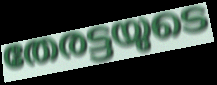
തേരട്ടയുടെ